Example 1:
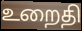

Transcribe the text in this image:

உறைதி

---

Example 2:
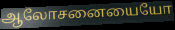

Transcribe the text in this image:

ஆலோசனையையோ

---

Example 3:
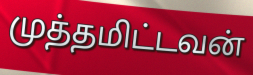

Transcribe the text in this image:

முத்தமிட்டவன்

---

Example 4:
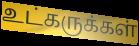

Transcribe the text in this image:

உட்கருக்கள்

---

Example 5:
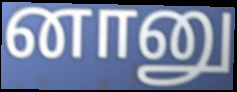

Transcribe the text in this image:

னானு